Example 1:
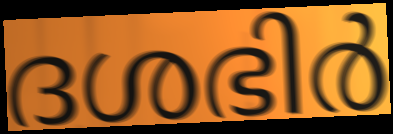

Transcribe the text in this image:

ദശഭിർ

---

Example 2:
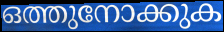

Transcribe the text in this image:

ഒത്തുനോക്കുക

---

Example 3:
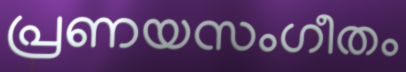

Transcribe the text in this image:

പ്രണയസംഗീതം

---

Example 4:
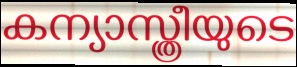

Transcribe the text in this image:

കന്യാസ്ത്രീയുടെ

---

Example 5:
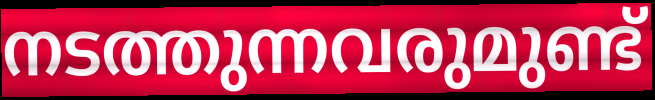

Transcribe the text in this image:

നടത്തുന്നവരുമുണ്ട്